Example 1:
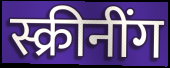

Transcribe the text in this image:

स्क्रीनींग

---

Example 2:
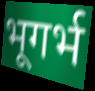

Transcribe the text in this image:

भूगर्भ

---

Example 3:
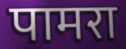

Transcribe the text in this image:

पामरा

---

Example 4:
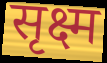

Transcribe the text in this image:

सृक्ष्म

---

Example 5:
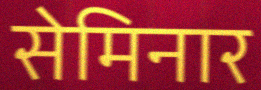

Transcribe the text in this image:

सेमिनार